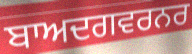
ਬਾਅਦਗਵਰਨਰ